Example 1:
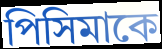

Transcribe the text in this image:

পিসিমাকে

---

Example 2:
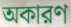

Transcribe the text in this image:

অকারণ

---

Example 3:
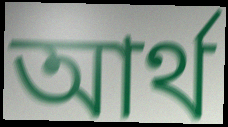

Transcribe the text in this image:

আর্থ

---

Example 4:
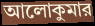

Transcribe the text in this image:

আলোকুমার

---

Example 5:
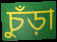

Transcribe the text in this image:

চুঁড়া